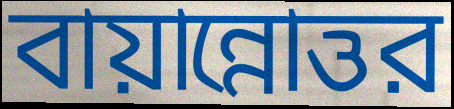
বায়ান্নোত্তর